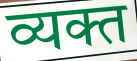
व्यक्त